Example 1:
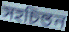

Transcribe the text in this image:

সহচিন্তন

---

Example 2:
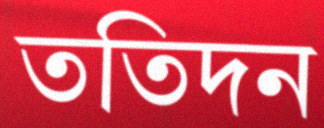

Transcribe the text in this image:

ততিদন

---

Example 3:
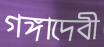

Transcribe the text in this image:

গঙ্গাদেবী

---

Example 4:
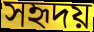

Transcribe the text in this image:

সহৃদয়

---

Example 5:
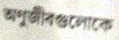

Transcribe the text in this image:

অণুজীবগুলোকে